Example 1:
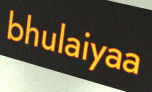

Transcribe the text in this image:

bhulaiyaa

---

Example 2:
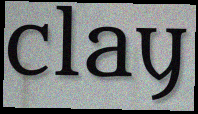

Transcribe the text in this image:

clay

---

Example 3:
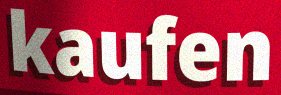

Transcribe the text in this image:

kaufen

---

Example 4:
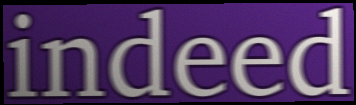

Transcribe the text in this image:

indeed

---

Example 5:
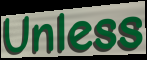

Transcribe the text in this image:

Unless